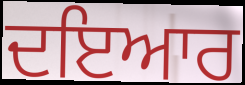
ਦਇਆਰ